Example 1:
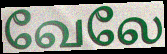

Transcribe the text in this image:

வேலே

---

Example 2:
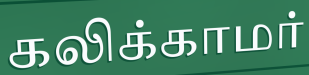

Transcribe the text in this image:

கலிக்காமர்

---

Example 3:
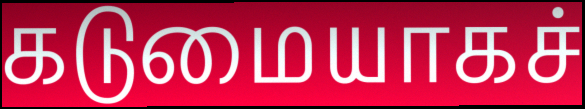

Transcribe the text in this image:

கடுமையாகச்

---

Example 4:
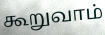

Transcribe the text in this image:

கூறுவாம்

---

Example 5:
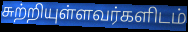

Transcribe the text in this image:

சுற்றியுள்ளவர்களிடம்